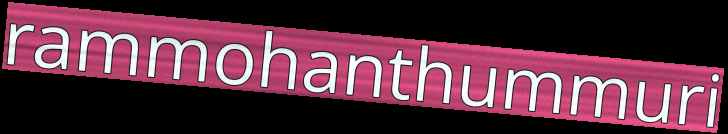
rammohanthummuri